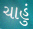
ચાહું